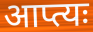
आप्त्यः